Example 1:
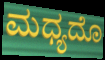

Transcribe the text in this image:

ಮಧ್ಯದೊ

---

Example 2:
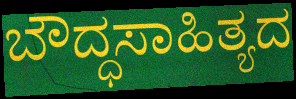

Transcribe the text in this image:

ಬೌದ್ಧಸಾಹಿತ್ಯದ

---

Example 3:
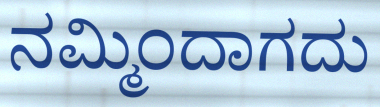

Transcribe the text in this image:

ನಮ್ಮಿಂದಾಗದು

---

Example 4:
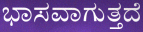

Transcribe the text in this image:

ಭಾಸವಾಗುತ್ತದೆ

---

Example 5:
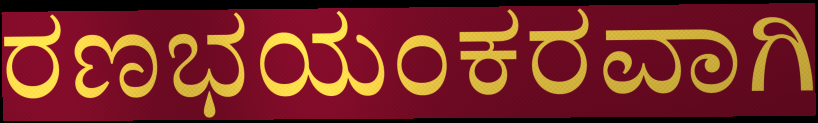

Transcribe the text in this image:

ರಣಭಯಂಕರವಾಗಿ